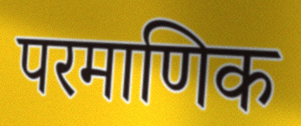
परमाणिक